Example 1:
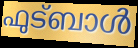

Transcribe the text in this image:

ഫുട്ബാൾ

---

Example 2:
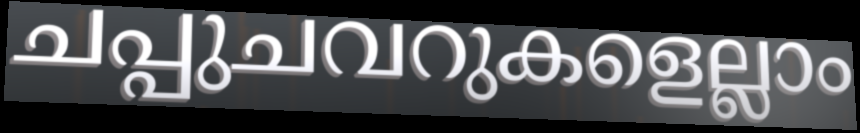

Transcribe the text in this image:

ചപ്പുചവറുകളെല്ലാം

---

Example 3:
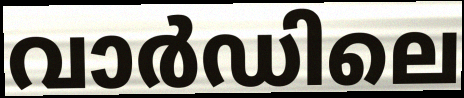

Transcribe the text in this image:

വാർഡിലെ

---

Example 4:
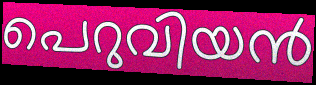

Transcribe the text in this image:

പെറുവിയൻ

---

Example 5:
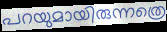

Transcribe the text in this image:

പറയുമായിരുന്നത്രെ